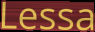
Lessa